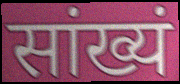
सांख्यं